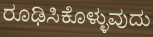
ರೂಢಿಸಿಕೊಳ್ಳುವುದು